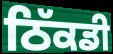
ਠਿੱਕਡੀ